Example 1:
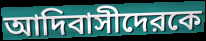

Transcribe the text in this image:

আদিবাসীদেরকে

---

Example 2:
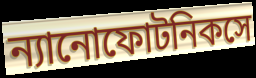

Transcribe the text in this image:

ন্যানোফোটনিকসে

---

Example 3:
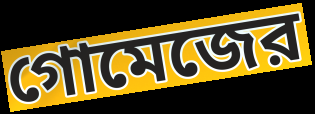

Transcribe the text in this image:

গোমেজের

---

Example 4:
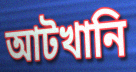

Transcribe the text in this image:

আটখানি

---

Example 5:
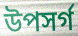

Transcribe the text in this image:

উপসর্গ